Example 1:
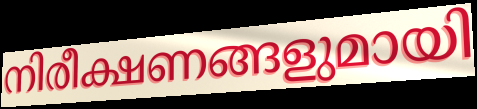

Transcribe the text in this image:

നിരീക്ഷണങ്ങളുമായി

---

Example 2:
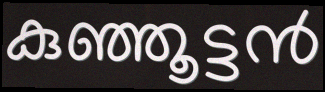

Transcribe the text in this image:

കുഞ്ഞൂട്ടൻ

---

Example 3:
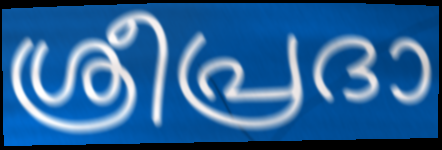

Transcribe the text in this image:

ശ്രീപ്രദാ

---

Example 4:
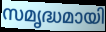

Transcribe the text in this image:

സമൃദ്ധമായി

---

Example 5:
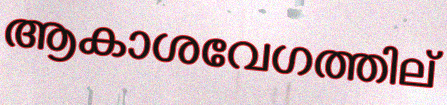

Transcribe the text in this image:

ആകാശവേഗത്തില്